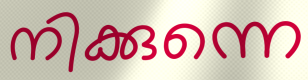
നിക്കുന്നെ